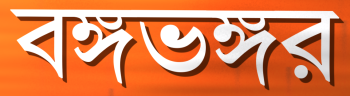
বঙ্গভঙ্গর